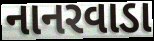
નાનરવાડા